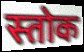
स्तोक